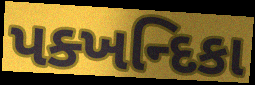
પક્ખન્દિકા